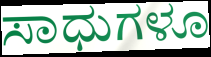
ಸಾಧುಗಳೂ